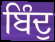
ਬਿੰਦੁ